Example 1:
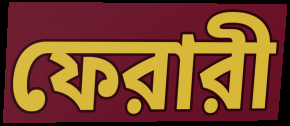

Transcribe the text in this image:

ফেরারী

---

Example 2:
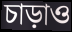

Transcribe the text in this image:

চাড়াও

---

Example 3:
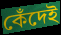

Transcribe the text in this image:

কেঁদেই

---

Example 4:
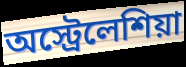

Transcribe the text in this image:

অস্ট্রেলেশিয়া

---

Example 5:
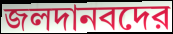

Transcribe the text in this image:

জলদানবদের